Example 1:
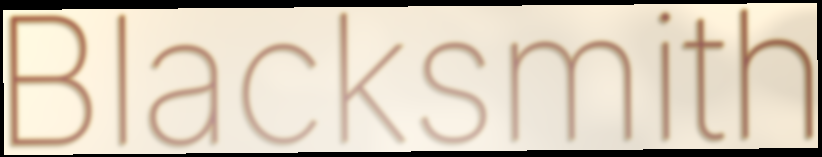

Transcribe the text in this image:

Blacksmith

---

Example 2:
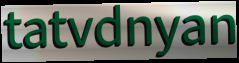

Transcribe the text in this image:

tatvdnyan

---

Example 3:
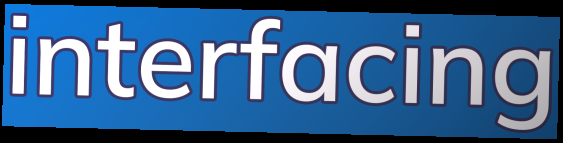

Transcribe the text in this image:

interfacing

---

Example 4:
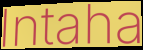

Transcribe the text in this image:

Intaha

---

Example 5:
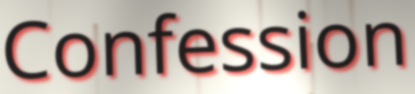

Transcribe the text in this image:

Confession